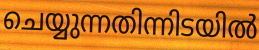
ചെയ്യുന്നതിന്നിടയിൽ